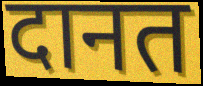
दानत